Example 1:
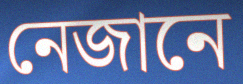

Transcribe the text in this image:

নেজানে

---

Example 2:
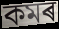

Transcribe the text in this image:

কমৰ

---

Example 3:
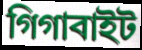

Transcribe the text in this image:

গিগাবাইট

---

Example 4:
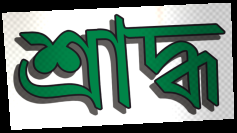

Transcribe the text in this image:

শ্ৰাদ্ধ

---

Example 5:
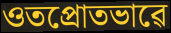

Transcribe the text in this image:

ওতপ্ৰোতভাৱে